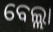
ବେଲ୍ଲା